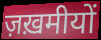
ज़ख़मीयों